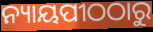
ନ୍ୟାୟପୀଠଠାରୁ